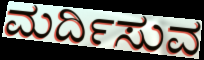
ಮರ್ದಿಸುವ